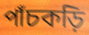
পাঁচকড়ি